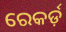
ରେକର୍ଡ଼